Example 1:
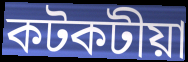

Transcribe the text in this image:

কটকটীয়া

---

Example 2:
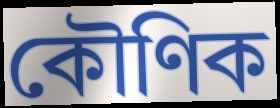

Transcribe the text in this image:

কৌণিক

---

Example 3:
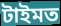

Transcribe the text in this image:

টাইমত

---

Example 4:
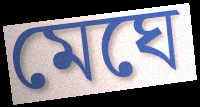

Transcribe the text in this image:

মেঘে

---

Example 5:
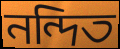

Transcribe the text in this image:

নন্দিত